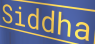
Siddha